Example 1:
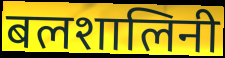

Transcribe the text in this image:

बलशालिनी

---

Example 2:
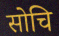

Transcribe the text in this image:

सोचि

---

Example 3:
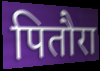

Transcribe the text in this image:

पितौरा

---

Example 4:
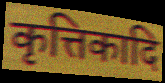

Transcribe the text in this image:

कृत्तिकादि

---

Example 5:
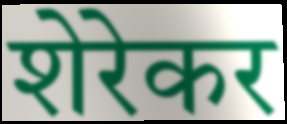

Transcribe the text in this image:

शेरेकर